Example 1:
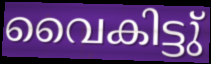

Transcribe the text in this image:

വൈകിട്ടു്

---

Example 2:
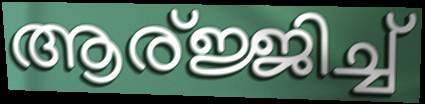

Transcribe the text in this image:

ആര്ജ്ജിച്ച്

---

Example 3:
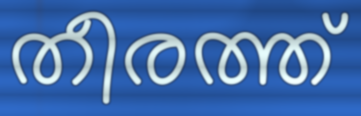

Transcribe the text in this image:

തീരത്ത്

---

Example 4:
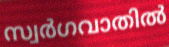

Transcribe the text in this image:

സ്വർഗവാതിൽ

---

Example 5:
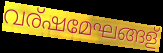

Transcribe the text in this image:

വര്ഷമേഘങ്ങള്